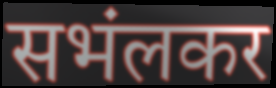
सभंलकर